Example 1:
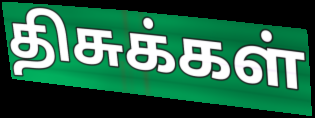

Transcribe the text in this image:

திசுக்கள்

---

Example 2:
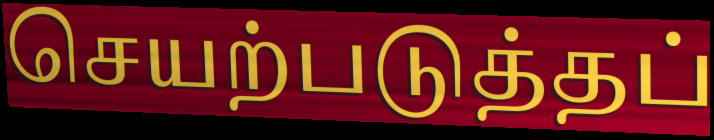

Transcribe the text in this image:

செயற்படுத்தப்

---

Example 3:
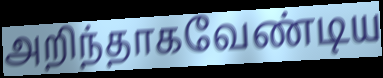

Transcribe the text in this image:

அறிந்தாகவேண்டிய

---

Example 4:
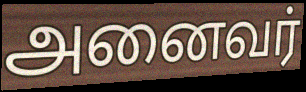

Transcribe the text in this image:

அனைவர்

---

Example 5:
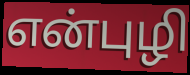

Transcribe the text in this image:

என்புழி